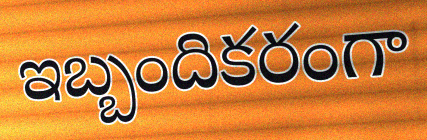
ఇబ్బందికరంగా